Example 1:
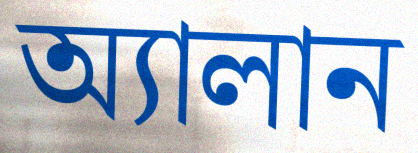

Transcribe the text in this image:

অ্যালান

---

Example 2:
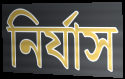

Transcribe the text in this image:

নির্যাস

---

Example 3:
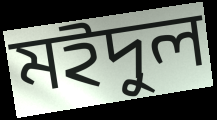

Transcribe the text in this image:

মইদুল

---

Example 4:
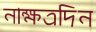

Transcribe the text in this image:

নাক্ষত্রদিন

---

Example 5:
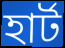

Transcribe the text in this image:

হার্ট